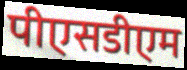
पीएसडीएम